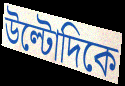
উল্টোদিকে